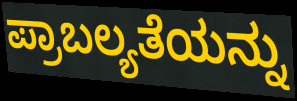
ಪ್ರಾಬಲ್ಯತೆಯನ್ನು